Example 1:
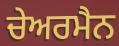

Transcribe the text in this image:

ਚੇਅਰਮੈਨ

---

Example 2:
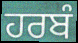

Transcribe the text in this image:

ਹਰਬੰ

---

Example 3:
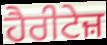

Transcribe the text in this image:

ਹੈਰੀਟੇਜ਼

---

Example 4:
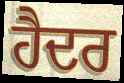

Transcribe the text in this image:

ਹੈਦਰ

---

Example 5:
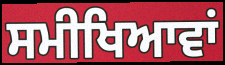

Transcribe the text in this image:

ਸਮੀਖਿਆਵਾਂ